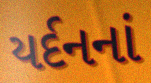
યર્દનનાં